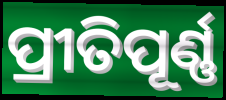
ପ୍ରୀତିପୂର୍ଣ୍ଣ